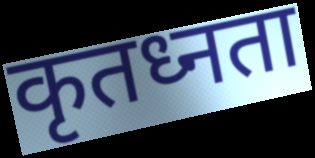
कृतध्नता